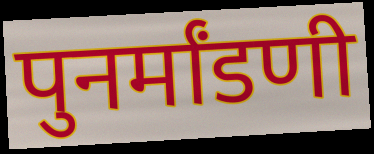
पुनर्मांडणी